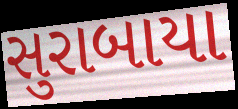
સુરાબાયા